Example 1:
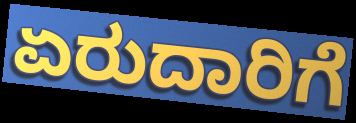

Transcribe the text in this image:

ಏರುದಾರಿಗೆ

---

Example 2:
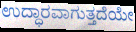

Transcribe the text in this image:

ಉದ್ಧಾರವಾಗುತ್ತದೆಯೇ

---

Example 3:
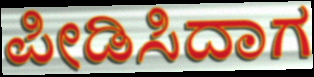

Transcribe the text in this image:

ಪೀಡಿಸಿದಾಗ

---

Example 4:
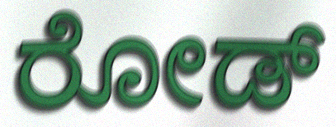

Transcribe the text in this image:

ರೋಡ್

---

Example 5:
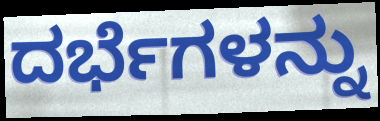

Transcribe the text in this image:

ದರ್ಭೆಗಳನ್ನು